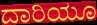
ದಾರಿಯೂ